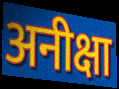
अनीक्षा